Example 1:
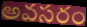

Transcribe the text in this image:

అవసరం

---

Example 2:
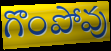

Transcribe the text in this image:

గొంపోవు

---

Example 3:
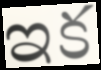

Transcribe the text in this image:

ఇక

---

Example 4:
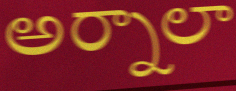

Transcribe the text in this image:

అర్నాలా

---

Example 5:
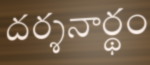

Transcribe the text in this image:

దర్శనార్థం